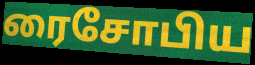
ரைசோபிய